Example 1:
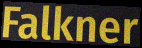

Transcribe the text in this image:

Falkner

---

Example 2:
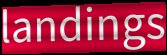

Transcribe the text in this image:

landings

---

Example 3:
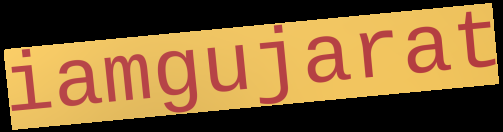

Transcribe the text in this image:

iamgujarat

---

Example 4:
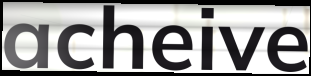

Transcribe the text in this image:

acheive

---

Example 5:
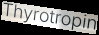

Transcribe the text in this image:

Thyrotropin